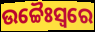
ଉଚ୍ଚୈଃସ୍ୱରେ